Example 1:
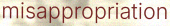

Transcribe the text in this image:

misappropriation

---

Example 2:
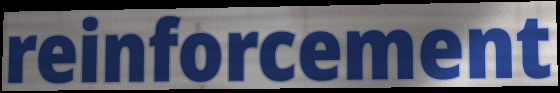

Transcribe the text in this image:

reinforcement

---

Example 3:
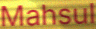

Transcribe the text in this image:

Mahsul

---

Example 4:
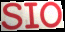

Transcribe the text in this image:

SIO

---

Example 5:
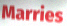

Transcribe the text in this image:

Marries